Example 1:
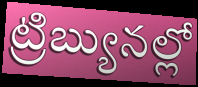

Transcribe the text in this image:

ట్రిబ్యునల్లో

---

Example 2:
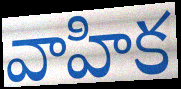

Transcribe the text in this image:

వాహిక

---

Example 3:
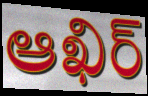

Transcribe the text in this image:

ఆఖిర్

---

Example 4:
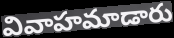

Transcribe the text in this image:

వివాహమాడారు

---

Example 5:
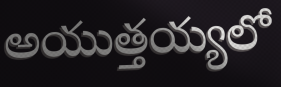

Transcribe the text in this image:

అయుత్తయ్యలో